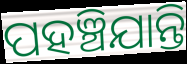
ପହଞ୍ଚିଯାନ୍ତି